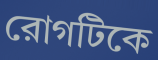
রোগটিকে